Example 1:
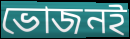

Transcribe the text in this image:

ভোজনই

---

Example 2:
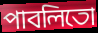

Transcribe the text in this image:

পাবলিতো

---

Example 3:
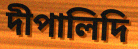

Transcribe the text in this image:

দীপালিদি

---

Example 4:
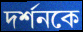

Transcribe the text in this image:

দর্শনকে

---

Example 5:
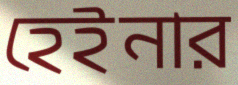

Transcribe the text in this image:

হেইনার